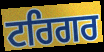
ਟਰਿਗਰ